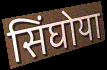
सिंघोया